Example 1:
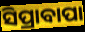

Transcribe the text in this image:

ସିପ୍ରାବାପା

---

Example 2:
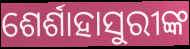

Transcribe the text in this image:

ଶେର୍ଶାହାସୁରୀଙ୍କ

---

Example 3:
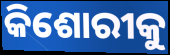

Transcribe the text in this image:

କିଶୋରୀକୁ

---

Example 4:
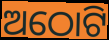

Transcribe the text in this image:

ଅଠୋଟି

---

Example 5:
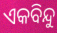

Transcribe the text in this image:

ଏକବିନ୍ଦୁ